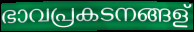
ഭാവപ്രകടനങ്ങള്